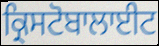
ਕ੍ਰਿਸਟੋਬਾਲਾਈਟ